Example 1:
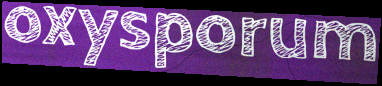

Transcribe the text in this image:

oxysporum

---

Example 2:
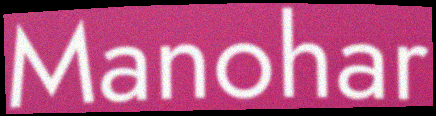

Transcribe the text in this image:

Manohar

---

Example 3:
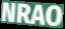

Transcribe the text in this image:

NRAO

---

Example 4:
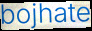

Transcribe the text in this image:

bojhate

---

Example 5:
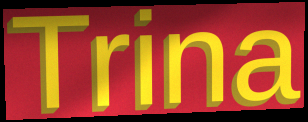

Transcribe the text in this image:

Trina